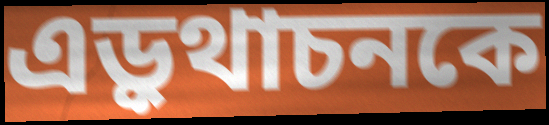
এড়ুথাচনকে